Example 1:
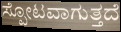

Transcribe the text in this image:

ಸ್ಪೋಟವಾಗುತ್ತದೆ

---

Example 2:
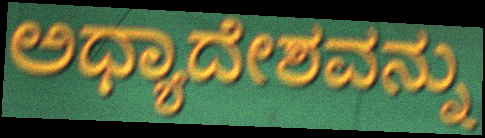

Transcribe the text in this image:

ಅಧ್ಯಾದೇಶವನ್ನು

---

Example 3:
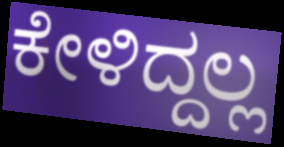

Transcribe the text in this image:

ಕೇಳಿದ್ದಲ್ಲ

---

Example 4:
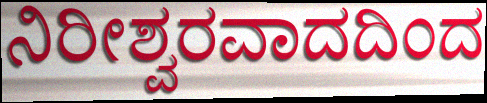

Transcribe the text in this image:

ನಿರೀಶ್ವರವಾದದಿಂದ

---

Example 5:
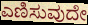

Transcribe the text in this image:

ಎಣಿಸುವುದೇ